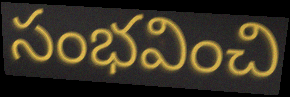
సంభవించి